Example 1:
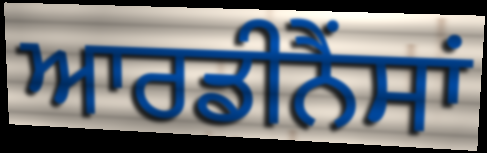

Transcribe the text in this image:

ਆਰਡੀਨੈਂਸਾਂ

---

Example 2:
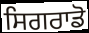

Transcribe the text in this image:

ਸਿਗਰਾਡੋ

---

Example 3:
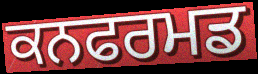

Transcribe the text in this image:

ਕਨਫਰਮਡ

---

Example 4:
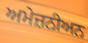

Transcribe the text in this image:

ਅਮੇਜ਼ਨੀਅਨ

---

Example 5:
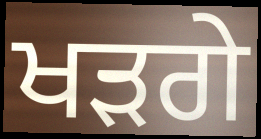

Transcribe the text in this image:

ਖੜਗੇ